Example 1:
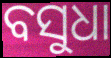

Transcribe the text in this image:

ବସୁଧା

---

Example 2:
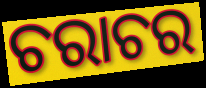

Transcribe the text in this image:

ଚରାଚର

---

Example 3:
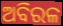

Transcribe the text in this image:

ଅବିରଳ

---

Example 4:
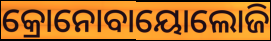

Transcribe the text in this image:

କ୍ରୋନୋବାୟୋଲୋଜି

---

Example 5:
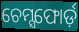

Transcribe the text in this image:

ଚେମ୍ସଫୋର୍ଡ଼